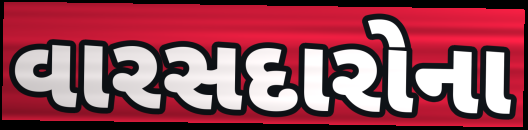
વારસદારોના